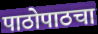
पाठोपाठचा